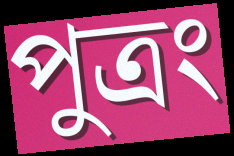
পুত্রং